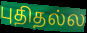
புதிதல்ல